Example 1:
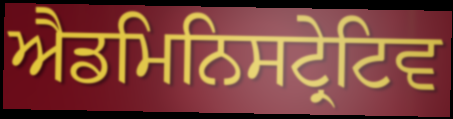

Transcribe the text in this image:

ਐਡਮਿਨਿਸਟ੍ਰੇਟਿਵ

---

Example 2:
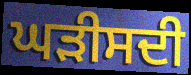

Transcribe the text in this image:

ਘੜੀਸਦੀ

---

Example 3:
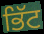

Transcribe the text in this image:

ਭਿੱਟ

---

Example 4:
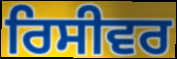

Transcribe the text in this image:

ਰਿਸੀਵਰ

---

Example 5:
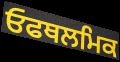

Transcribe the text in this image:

ਓਫਥਲਮਿਕ